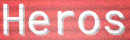
Heros